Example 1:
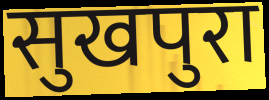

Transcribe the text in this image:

सुखपुरा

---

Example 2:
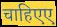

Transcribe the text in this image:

चाहिएए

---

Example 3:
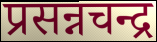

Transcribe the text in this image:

प्रसन्नचन्द्र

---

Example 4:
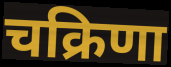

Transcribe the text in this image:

चक्रिणा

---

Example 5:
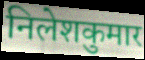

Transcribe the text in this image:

निलेशकुमार